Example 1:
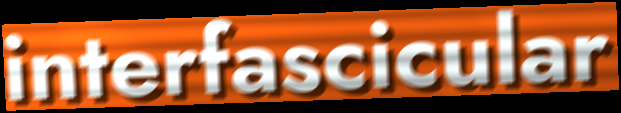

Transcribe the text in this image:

interfascicular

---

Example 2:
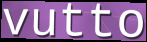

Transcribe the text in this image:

vutto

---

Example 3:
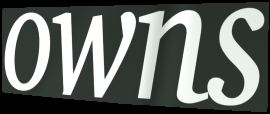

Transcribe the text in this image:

owns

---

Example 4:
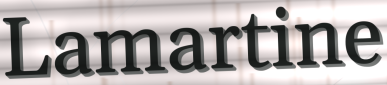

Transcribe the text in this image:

Lamartine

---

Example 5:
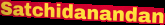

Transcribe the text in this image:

Satchidanandan